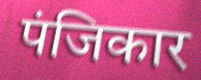
पंजिकार